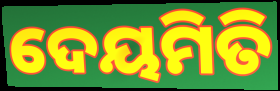
ଦେୟମିତି